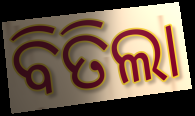
ବିତିଲା